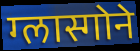
ग्लास्गोने